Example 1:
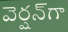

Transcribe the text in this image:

వెర్షన్‌గా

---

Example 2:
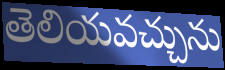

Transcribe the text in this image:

తెలియవచ్చును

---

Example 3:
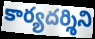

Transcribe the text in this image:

కార్యదర్శిని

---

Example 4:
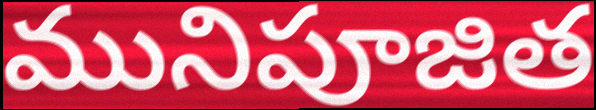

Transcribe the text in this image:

మునిపూజిత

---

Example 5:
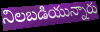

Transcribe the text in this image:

నిలబడియున్నారు